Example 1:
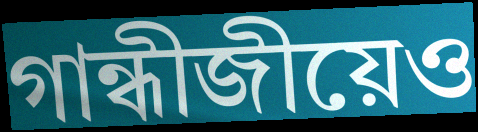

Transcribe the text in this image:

গান্ধীজীয়েও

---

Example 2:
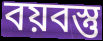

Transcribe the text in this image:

বয়বস্তু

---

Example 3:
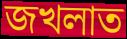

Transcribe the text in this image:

জখলাত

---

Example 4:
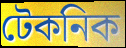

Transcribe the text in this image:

টেকনিক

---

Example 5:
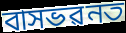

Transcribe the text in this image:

বাসভৱনত